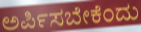
ಅರ್ಪಿಸಬೇಕೆಂದು